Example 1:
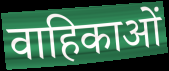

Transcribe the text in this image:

वाहिकाओं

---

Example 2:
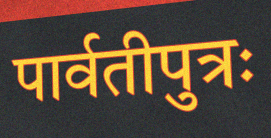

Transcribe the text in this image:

पार्वतीपुत्रः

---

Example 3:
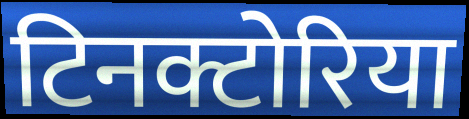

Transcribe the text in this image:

टिनक्टोरिया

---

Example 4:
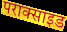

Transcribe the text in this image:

पराक्साइड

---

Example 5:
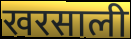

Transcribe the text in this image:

खरसाली